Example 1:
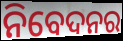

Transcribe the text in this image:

ନିବେଦନର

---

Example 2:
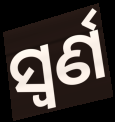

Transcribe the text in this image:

ସ୍ୱର୍ଣ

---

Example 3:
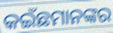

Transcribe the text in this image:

କଇଁଛମାନଙ୍କର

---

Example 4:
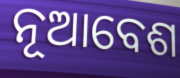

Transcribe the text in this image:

ନୂଆବେଶ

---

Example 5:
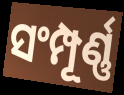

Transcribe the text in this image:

ସଂମ୍ପୂର୍ଣ୍ଣ